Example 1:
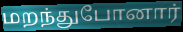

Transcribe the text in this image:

மறந்துபோனார்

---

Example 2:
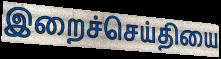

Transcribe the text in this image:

இறைச்செய்தியை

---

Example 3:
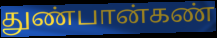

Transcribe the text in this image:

துண்பான்கண்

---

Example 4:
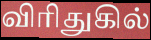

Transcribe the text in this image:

விரிதுகில்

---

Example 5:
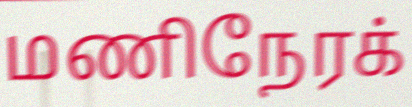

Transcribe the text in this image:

மணிநேரக்